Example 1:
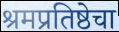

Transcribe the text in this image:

श्रमप्रतिष्ठेचा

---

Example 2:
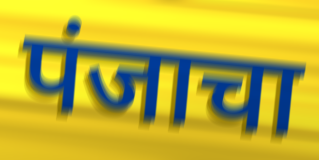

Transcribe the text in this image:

पंजाचा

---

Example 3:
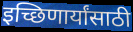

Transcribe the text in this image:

इच्छिणार्यांसाठी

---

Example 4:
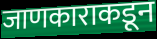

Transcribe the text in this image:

जाणकाराकडून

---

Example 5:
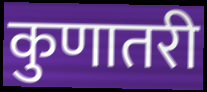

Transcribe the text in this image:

कुणातरी